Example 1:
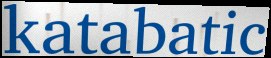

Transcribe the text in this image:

katabatic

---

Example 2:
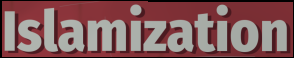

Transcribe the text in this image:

Islamization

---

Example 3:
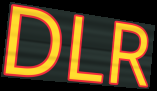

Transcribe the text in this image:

DLR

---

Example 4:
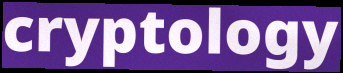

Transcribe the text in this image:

cryptology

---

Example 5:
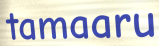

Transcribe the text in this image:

tamaaru